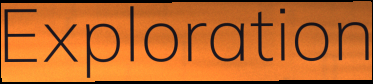
Exploration